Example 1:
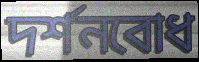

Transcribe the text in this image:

দর্শনবোধ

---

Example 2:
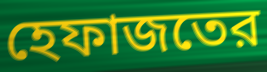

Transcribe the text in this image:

হেফাজতের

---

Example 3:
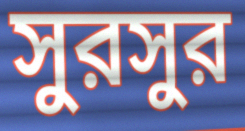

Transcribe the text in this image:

সুরসুর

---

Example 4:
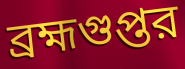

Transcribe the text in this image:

ব্রহ্মগুপ্তর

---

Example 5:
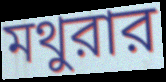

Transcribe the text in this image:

মথুরার